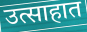
उत्साहात